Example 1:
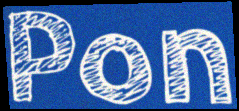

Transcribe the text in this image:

Pon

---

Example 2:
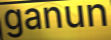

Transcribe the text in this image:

ganun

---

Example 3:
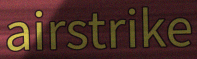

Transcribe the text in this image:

airstrike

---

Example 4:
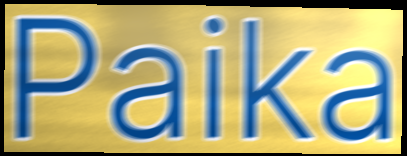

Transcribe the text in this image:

Paika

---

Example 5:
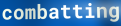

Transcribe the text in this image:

combatting